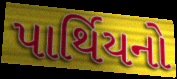
પાર્થિયનો